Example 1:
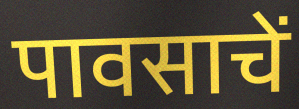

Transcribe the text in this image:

पावसाचें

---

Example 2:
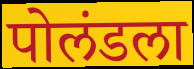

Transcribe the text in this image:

पोलंडला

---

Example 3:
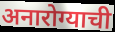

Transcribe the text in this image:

अनारोग्याची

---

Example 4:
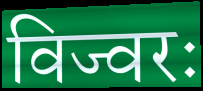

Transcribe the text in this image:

विज्वरः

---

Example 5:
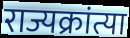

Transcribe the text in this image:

राज्यक्रांत्या